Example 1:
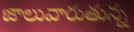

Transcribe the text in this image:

జాలువారుతున్న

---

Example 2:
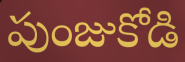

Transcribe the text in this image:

పుంజుకోడి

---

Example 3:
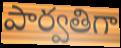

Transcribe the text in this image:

పార్వతిగా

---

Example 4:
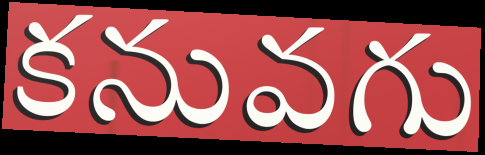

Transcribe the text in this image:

కనువగు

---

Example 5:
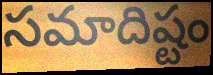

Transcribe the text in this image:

సమాదిష్టం